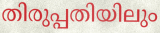
തിരുപ്പതിയിലും